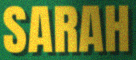
SARAH